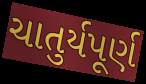
ચાતુર્યપૂર્ણ